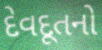
દેવદૂતનો